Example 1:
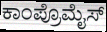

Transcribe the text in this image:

ಕಾಂಪ್ರೊಮೈಸ್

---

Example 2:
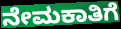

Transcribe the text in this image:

ನೇಮಕಾತಿಗೆ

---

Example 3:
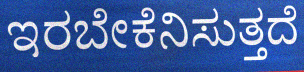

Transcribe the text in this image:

ಇರಬೇಕೆನಿಸುತ್ತದೆ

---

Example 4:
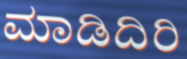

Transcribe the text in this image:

ಮಾಡಿದಿರಿ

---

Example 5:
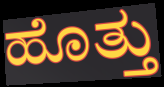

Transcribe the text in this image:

ಹೊತ್ತು